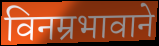
विनम्रभावाने